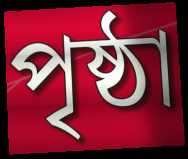
পৃষ্ঠা